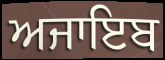
ਅਜਾਇਬ